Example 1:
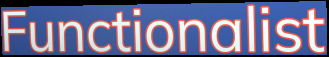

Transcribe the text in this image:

Functionalist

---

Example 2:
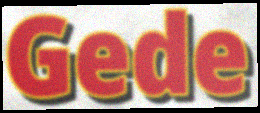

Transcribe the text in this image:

Gede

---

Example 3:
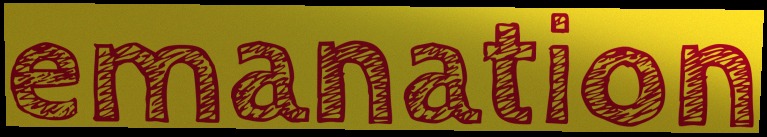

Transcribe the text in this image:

emanation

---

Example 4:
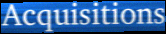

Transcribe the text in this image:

Acquisitions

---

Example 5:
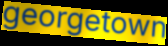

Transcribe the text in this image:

georgetown